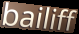
bailiff